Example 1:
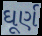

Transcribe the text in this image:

ઘૂર્ણ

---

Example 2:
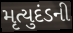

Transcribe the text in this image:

મૃત્યુદંડની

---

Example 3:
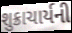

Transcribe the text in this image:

શુક્રાચાર્યની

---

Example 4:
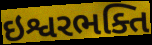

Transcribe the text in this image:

ઇશ્વરભક્તિ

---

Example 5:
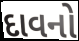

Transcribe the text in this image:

દાવનો